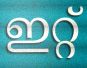
ഇറ്റ്